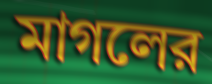
মাগলের